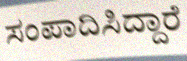
ಸಂಪಾದಿಸಿದ್ದಾರೆ